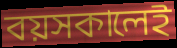
বয়সকালেই